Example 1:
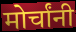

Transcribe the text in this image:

मोर्चांनी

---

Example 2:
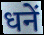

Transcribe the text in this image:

धनें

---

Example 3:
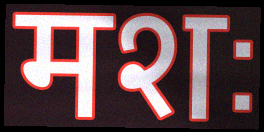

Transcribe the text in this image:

मशः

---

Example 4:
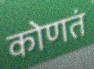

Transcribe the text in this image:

कोणतं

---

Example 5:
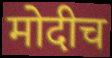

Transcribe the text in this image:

मोदीच